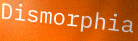
Dismorphia